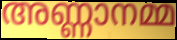
അണ്ണാനമ്മ